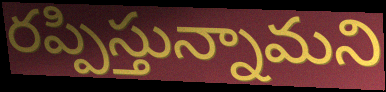
రప్పిస్తున్నామని